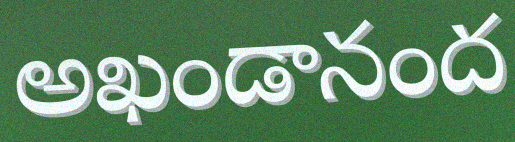
అఖండానంద